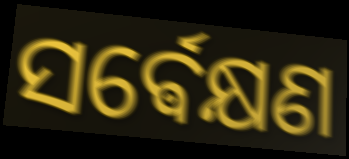
ସର୍ଵେକ୍ଷଣ